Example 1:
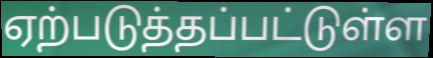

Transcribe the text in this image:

ஏற்படுத்தப்பட்டுள்ள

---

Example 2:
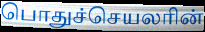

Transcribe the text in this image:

பொதுச்செயலரின்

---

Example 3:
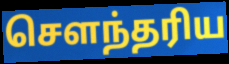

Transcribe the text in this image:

சௌந்தரிய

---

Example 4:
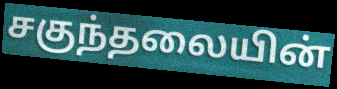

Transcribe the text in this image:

சகுந்தலையின்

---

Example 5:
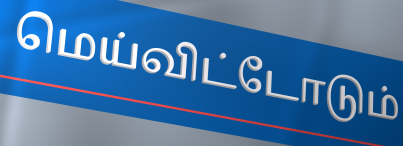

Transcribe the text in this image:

மெய்விட்டோடும்